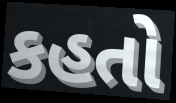
કહતો